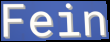
Fein